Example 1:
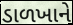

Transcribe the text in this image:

ડાળખાને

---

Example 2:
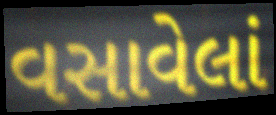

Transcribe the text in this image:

વસાવેલાં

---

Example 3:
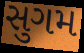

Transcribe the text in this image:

સુગમ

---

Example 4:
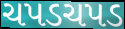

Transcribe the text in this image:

ચપડચપડ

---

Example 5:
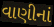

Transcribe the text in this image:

વાણીનાં